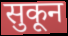
सुकून